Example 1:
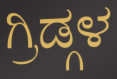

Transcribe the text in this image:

ಗ್ರಿಡ್ಗಳ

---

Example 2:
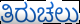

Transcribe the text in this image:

ತಿರುಚಲು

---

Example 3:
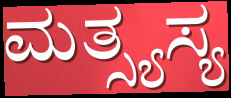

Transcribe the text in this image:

ಮತ್ಸ್ಯಸ್ಯ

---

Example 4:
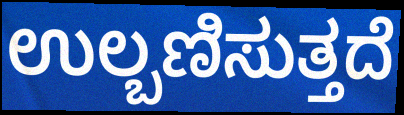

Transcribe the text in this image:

ಉಲ್ಬಣಿಸುತ್ತದೆ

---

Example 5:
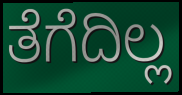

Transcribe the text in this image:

ತೆಗೆದಿಲ್ಲ